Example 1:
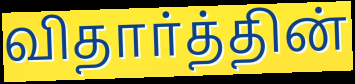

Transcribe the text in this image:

விதார்த்தின்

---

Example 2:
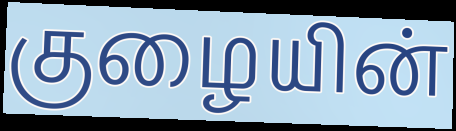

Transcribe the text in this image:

குழையின்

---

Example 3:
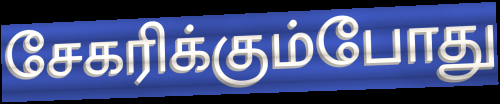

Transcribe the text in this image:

சேகரிக்கும்போது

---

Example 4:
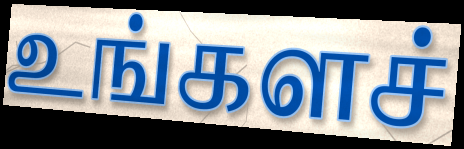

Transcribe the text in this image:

உங்களச்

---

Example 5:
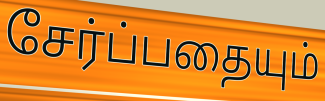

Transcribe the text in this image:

சேர்ப்பதையும்